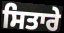
ਸਿਤਾਰੇ